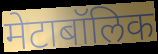
मेटाबॉलिक